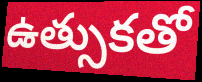
ఉత్సుకతో